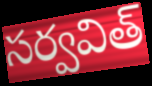
సర్వవిత్